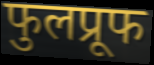
फुलप्रूफ